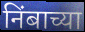
निंबाच्या